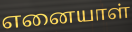
எனையாள்